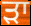
ੜਾ